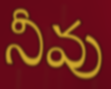
నీవు